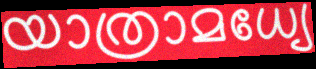
യാത്രാമധ്യേ